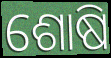
ଶୋଷି